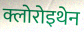
क्लोरोइथेन